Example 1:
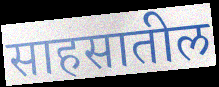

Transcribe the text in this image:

साहसातील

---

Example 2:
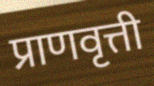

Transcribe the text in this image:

प्राणवृत्ती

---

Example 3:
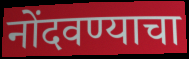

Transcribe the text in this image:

नोंदवण्याचा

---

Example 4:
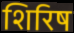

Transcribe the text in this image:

शिरिष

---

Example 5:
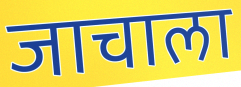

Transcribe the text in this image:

जाचाला